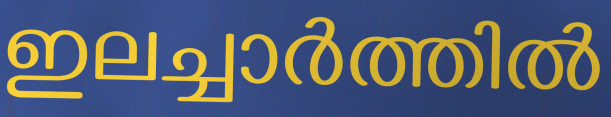
ഇലച്ചാർത്തിൽ